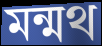
মন্মথ